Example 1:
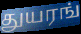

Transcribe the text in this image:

துயரங்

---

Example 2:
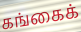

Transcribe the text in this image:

கங்கைக்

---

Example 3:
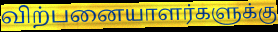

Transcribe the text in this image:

விற்பனையாளர்களுக்கு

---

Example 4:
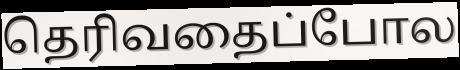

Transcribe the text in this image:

தெரிவதைப்போல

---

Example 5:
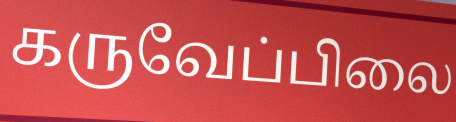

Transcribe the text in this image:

கருவேப்பிலை